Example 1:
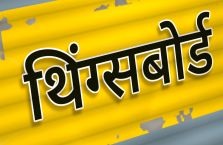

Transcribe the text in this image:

थिंग्सबोर्ड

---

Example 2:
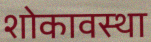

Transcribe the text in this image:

शोकावस्था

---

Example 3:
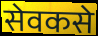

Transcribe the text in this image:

सेवकसे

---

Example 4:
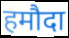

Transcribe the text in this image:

हमौदा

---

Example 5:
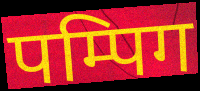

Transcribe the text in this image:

पम्पिग